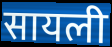
सायली